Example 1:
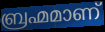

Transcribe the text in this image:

ബ്രഹ്മമാണ്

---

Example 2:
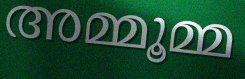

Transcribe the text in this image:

അമ്മൂമ്മ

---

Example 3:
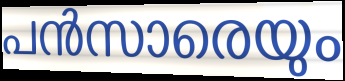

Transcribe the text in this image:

പൻസാരെയും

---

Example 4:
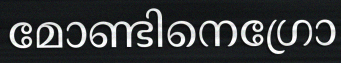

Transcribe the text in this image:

മോണ്ടിനെഗ്രോ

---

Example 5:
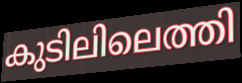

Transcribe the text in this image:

കുടിലിലെത്തി